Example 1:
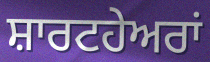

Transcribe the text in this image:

ਸ਼ਾਰਟਹੇਅਰਾਂ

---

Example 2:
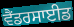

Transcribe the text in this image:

ਵੈਂਡਰਸਾਈਡ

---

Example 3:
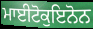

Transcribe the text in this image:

ਮਾਈਟੋਕੁਇਨੋਨ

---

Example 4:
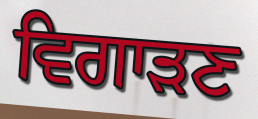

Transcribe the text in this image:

ਵਿਗਾੜਣ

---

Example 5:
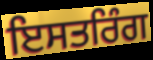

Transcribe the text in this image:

ਇਸਤਰਿੰਗ